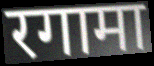
रगामा